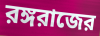
রঙ্গরাজের